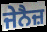
ਜੇਨੈਜ਼